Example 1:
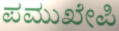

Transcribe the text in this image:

ಪಮುಖೇಪಿ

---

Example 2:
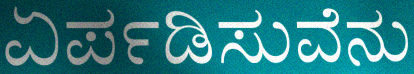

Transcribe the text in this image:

ಏರ್ಪಡಿಸುವೆನು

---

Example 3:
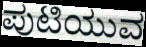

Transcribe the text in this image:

ಪುಟಿಯುವ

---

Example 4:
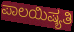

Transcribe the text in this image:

ಪಾಲಯಿಷ್ಯತಿ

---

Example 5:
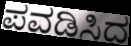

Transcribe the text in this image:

ಪವಡಿಸಿದ